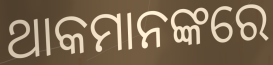
ଥାକମାନଙ୍କରେ